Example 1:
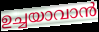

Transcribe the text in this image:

ഉച്ചയാവാൻ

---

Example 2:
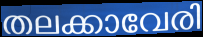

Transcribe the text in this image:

തലക്കാവേരി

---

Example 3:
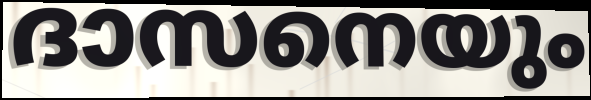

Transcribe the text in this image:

ദാസനെയും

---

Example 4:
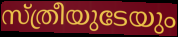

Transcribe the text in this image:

സ്ത്രീയുടേയും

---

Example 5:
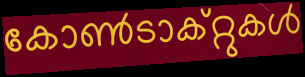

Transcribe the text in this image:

കോൺടാക്റ്റുകൾ